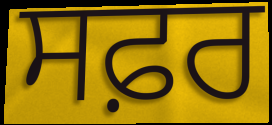
ਸਫ਼ਰ